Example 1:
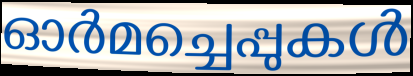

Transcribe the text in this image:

ഓർമച്ചെപ്പുകൾ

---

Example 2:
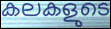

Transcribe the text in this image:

കലകളുടെ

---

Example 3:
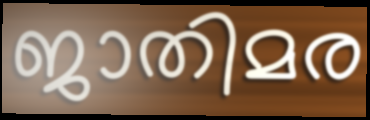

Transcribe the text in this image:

ജാതിമര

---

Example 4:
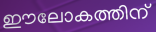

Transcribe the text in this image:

ഈലോകത്തിന്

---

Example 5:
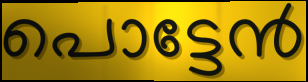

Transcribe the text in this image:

പൊട്ടേൻ